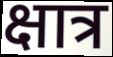
क्षात्र